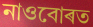
নাওবোৰত